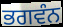
ਭਗਵੰਨ